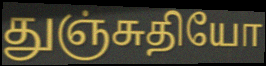
துஞ்சுதியோ